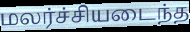
மலர்ச்சியடைந்த